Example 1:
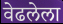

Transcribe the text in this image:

वेढलेला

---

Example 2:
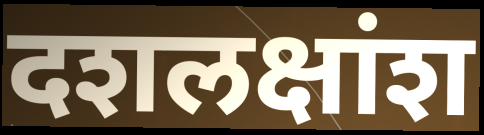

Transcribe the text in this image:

दशलक्षांश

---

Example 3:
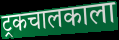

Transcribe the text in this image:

ट्रकचालकाला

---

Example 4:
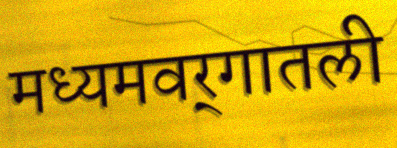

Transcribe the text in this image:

मध्यमवर्गातली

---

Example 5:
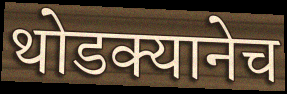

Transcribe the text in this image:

थोडक्यानेच